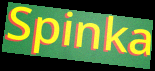
Spinka